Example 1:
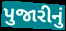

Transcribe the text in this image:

પુજારીનું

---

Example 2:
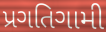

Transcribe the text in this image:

પ્રગતિગામી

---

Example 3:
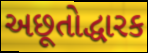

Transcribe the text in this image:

અછૂતોદ્ધારક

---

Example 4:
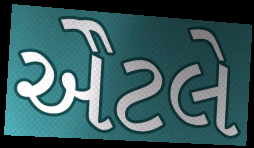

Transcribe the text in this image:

એેટલે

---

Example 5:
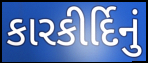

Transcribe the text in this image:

કારકીર્દિનું